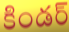
కిండర్